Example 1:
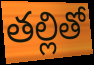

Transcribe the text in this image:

తల్లితో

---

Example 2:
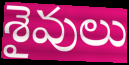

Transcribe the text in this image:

శైవులు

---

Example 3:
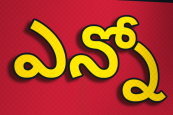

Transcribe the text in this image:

ఎన్నో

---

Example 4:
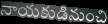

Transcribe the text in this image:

నాయకుడినుంచి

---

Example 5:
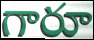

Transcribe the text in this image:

గారూ